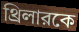
থ্রিলারকে